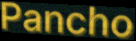
Pancho